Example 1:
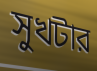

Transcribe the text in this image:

সুখটার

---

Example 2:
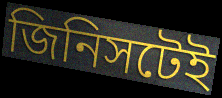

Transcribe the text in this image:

জিনিসটেই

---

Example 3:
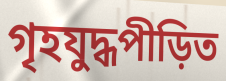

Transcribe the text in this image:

গৃহযুদ্ধপীড়িত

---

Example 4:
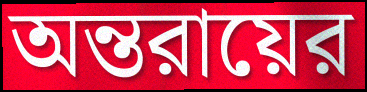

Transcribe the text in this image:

অন্তরায়ের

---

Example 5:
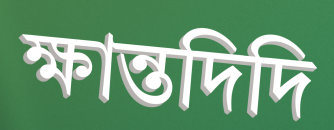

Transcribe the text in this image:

ক্ষান্তদিদি